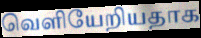
வெளியேறியதாக